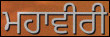
ਮਹਾਵੀਰੀ